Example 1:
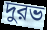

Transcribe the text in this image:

দুরভ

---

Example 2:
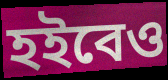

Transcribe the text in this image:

হইবেও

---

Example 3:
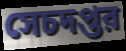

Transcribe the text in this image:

সেচদপ্তর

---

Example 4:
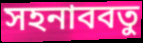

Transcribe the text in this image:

সহনাববতু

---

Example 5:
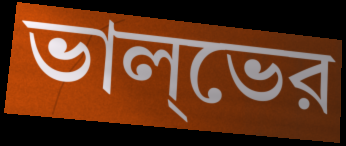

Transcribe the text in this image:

ভাল্ভের